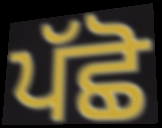
ਪੱਛੋ